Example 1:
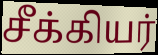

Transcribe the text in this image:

சீக்கியர்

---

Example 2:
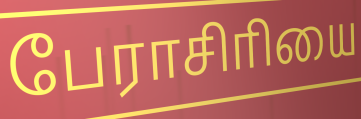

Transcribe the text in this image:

பேராசிரியை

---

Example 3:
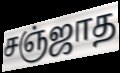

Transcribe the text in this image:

சஞ்ஜாத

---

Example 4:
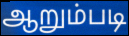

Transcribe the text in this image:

ஆறும்படி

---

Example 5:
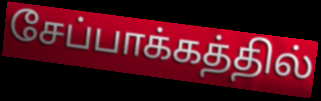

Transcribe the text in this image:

சேப்பாக்கத்தில்